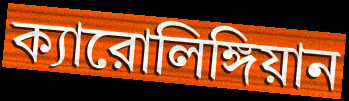
ক্যারোলিঙ্গিয়ান